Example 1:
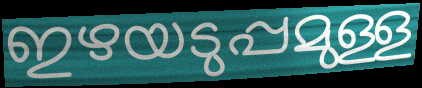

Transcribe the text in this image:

ഇഴയടുപ്പമുള്ള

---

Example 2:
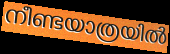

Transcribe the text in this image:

നീണ്ടയാത്രയിൽ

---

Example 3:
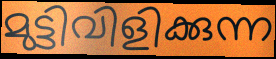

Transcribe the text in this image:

മുട്ടിവിളിക്കുന്ന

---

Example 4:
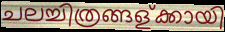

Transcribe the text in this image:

ചലച്ചിത്രങ്ങള്ക്കായി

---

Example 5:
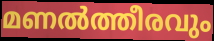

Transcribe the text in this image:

മണൽത്തീരവും